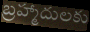
బ్రహ్మాదులకు